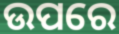
ଉପରେ